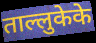
ताल्लुकेके